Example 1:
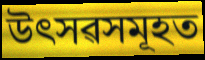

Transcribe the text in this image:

উৎসৱসমূহত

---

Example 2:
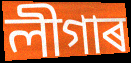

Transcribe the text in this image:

লীগাৰ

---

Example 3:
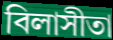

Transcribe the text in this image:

বিলাসীতা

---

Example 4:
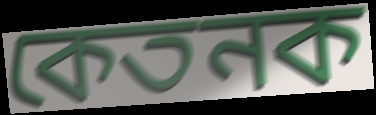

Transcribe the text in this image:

কেতনক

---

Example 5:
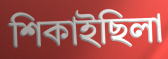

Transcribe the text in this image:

শিকাইছিলা